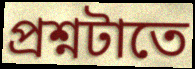
প্রশ্নটাতে